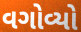
વગોવ્યો